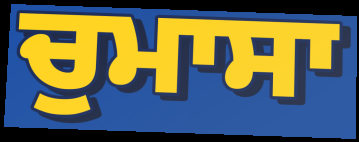
ਚੁਮਾਸਾ